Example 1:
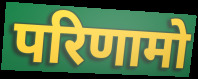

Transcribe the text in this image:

परिणामो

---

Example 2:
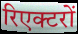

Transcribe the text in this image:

रिएक्टरों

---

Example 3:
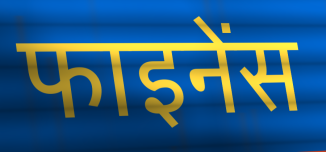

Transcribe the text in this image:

फाइनेंस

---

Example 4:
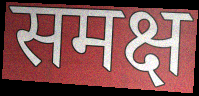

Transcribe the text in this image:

समक्ष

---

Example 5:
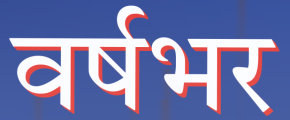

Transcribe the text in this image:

वर्षभर